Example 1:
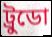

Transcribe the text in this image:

ট্রুডো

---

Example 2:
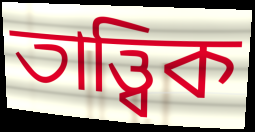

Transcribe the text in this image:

তাত্ত্বিক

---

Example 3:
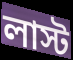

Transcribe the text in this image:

লাস্ট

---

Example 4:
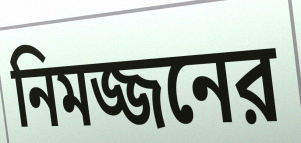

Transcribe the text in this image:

নিমজ্জনের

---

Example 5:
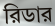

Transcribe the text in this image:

রিডার